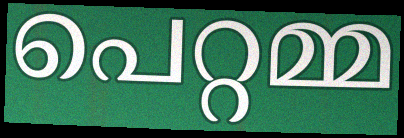
പെറ്റമ്മ